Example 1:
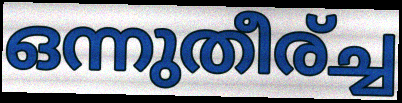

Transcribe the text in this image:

ഒന്നുതീര്ച്ച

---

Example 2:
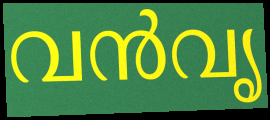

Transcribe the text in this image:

വൻവൃ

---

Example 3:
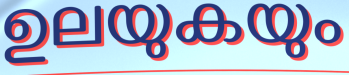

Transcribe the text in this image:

ഉലയുകയും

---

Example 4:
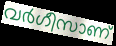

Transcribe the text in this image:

വർഗീസാണ്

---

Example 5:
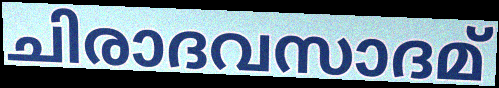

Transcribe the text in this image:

ചിരാദവസാദമ്